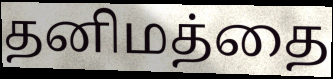
தனிமத்தை